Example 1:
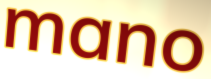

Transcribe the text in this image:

mano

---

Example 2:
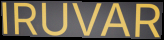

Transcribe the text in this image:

IRUVAR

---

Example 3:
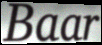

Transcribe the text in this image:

Baar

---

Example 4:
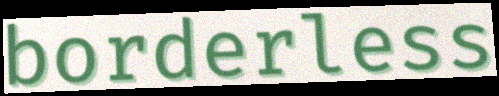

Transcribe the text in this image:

borderless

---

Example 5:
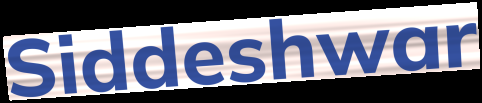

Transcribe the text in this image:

Siddeshwar